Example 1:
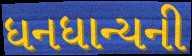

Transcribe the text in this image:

ધનધાન્યની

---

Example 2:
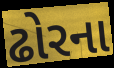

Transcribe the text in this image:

ઢોરના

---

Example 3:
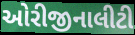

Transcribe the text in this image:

ઓરીજીનાલીટી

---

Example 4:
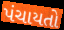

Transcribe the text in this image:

પંચાયતો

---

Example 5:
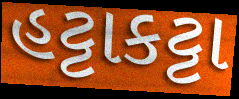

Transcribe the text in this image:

હટ્ટાકટ્ટા